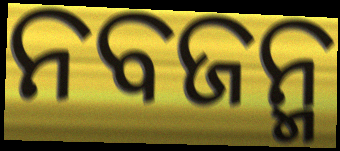
ନବଜନ୍ମ